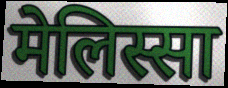
मेलिस्सा